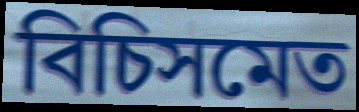
বিচিসমেত